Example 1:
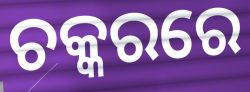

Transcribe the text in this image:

ଚକ୍କରରେ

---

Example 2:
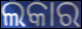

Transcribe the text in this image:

ଲକାର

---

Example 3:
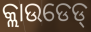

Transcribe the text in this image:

କ୍ଲାଉଡେଡ୍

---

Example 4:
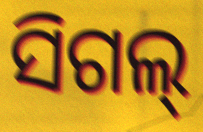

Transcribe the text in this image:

ସିଗଲ୍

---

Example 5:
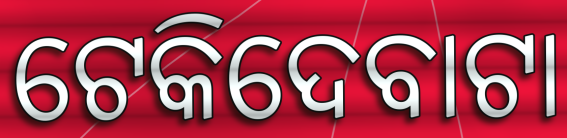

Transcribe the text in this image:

ଟେକିଦେବାଟା